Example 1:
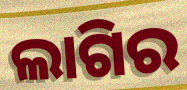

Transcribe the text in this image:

ଲାଗିର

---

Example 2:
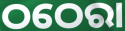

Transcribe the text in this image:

ଠଠେରା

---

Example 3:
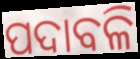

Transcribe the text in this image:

ପଦାବଳି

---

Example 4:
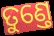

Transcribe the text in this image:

ତୁଣ୍ତେ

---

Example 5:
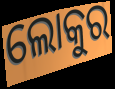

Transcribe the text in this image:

ଲୋକୁର